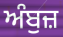
ਅੰਬੁਜ਼